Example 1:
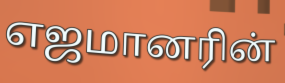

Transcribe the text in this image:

எஜமானரின்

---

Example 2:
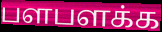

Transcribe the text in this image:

பளபளக்க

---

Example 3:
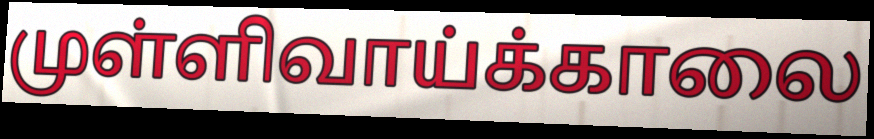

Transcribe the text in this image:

முள்ளிவாய்க்காலை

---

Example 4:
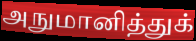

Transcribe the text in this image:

அநுமானித்துக்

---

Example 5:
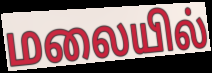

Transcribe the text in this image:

மலையில்